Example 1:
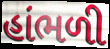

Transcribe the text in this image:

હાંભળી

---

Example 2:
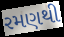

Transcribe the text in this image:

રમણથી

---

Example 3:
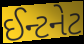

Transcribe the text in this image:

ઈન્ટનેટ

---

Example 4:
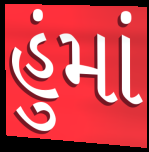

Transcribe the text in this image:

હુંમાં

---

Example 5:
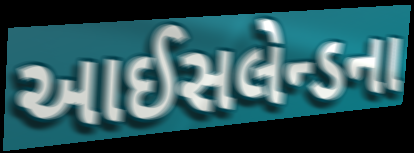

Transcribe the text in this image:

આઈસલેન્ડના